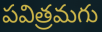
పవిత్రమగు